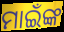
ମାଇଁଙ୍କ